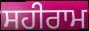
ਸਹੀਰਾਮ